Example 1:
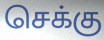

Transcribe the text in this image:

செக்கு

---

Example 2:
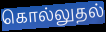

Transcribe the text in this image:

கொல்லுதல்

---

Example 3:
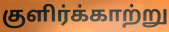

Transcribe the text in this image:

குளிர்க்காற்று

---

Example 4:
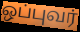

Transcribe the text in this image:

ஒப்புவர்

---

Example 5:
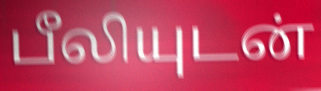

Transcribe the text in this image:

பீலியுடன்